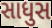
સાધુસ